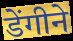
डेंगीने